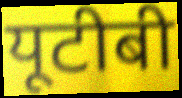
यूटीबी